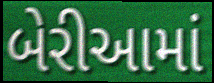
બેરીઆમાં